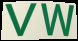
vw